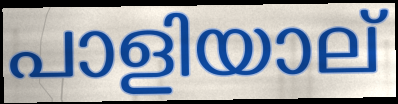
പാളിയാല്